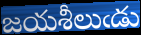
జయశీలుఁడు